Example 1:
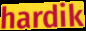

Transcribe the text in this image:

hardik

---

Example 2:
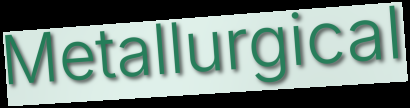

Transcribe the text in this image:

Metallurgical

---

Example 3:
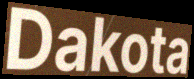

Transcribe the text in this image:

Dakota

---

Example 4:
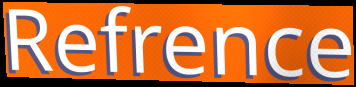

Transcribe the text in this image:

Refrence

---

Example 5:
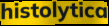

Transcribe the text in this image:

histolytica